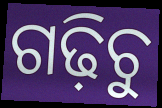
ଗଢ଼ିଚୁ